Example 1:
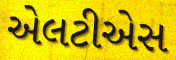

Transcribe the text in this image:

એલટીએસ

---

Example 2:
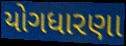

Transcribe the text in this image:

યોગધારણા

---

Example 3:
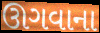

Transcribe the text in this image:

ઊગવાના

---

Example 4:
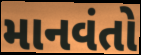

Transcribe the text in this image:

માનવંતો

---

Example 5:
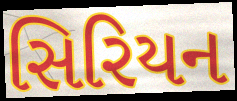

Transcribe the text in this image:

સિરિયન